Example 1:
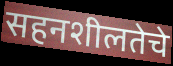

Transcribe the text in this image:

सहनशीलतेचे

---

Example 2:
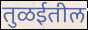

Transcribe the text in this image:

तुळईतील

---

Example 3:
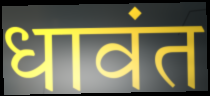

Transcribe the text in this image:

धावंत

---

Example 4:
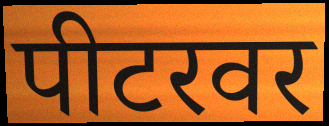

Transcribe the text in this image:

पीटरवर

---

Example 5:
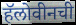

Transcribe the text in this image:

हॅलोवीनची